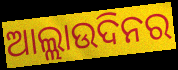
ଆଲ୍ଲାଉଦିନର